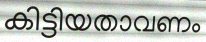
കിട്ടിയതാവണം